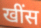
खींस